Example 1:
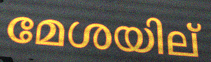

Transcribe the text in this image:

മേശയില്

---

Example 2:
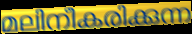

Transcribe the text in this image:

മലിനീകരിക്കുന്ന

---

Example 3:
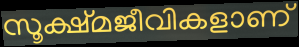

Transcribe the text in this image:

സൂക്ഷ്മജീവികളാണ്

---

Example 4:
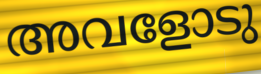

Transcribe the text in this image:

അവളോടു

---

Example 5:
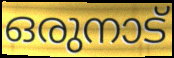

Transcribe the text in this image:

ഒരുനാട്